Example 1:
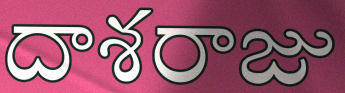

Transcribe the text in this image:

దాశరాజు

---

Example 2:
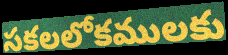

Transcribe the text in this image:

సకలలోకములకు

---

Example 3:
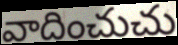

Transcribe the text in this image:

వాదించుచు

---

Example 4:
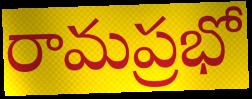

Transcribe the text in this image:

రామప్రభో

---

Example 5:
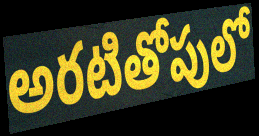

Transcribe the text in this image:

అరటితోపులో